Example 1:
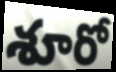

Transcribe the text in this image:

శూరో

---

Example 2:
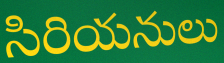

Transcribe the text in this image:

సిరియనులు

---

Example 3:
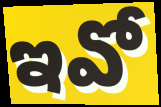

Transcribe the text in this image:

ఇవో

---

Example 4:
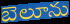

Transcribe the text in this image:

బెలూను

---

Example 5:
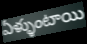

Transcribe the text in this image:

ఏళ్ళుంటాయి